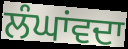
ਲੰਘਾਂਵਦਾ